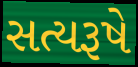
સત્યરૂષે